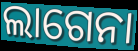
ଲାଗେନା